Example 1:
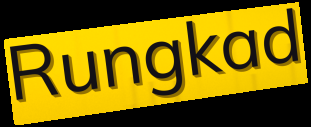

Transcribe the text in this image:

Rungkad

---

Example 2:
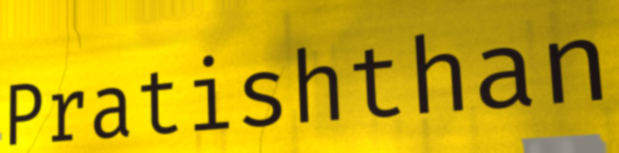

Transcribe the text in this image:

Pratishthan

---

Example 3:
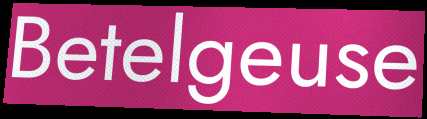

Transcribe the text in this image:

Betelgeuse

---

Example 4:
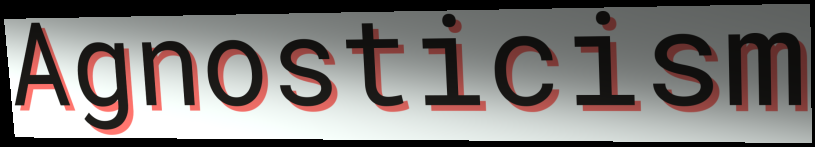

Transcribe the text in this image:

Agnosticism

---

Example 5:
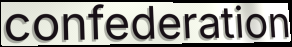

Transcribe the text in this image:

confederation